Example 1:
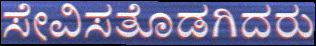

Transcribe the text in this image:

ಸೇವಿಸತೊಡಗಿದರು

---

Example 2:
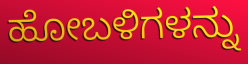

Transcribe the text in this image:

ಹೋಬಳಿಗಳನ್ನು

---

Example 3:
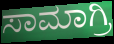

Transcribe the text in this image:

ಸಾಮಾಗ್ರಿ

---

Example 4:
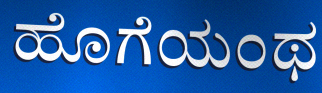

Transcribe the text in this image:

ಹೊಗೆಯಂಥ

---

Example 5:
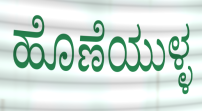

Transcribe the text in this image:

ಹೊಣೆಯುಳ್ಳ